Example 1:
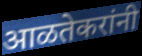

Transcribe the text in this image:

आळतेकरांनी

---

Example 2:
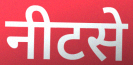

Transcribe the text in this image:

नीटसे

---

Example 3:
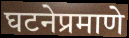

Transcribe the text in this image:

घटनेप्रमाणे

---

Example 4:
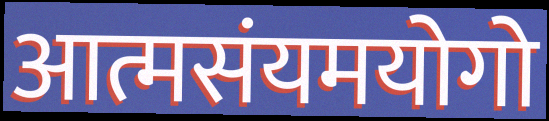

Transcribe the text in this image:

आत्मसंयमयोगो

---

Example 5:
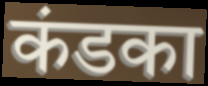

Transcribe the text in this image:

कंडका